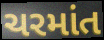
ચરમાંત